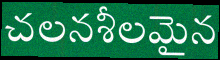
చలనశీలమైన